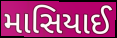
માસિયાઈ